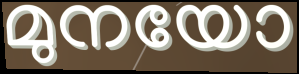
മുനയോ